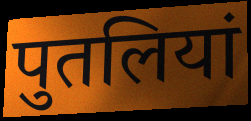
पुतलियां